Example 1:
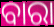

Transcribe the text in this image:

ବାରା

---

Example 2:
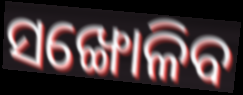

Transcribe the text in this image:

ସଙ୍ଖୋଳିବ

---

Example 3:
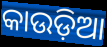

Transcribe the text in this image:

କାଉଡ଼ିଆ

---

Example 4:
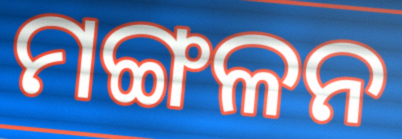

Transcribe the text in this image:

ମଙ୍ଗଳନ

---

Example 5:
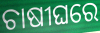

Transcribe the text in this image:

ଚାଷୀଘରେ